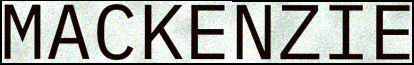
MACKENZIE